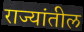
राज्यांतील